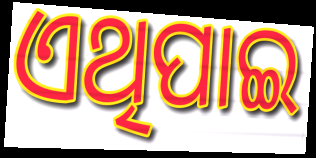
ଏଥିପାଇ